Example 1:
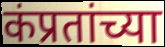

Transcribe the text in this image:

कंप्रतांच्या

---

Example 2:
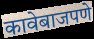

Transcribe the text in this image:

कावेबाजपणे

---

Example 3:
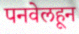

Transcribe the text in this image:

पनवेलहून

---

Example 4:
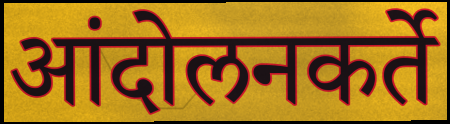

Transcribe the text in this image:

आंदोलनकर्ते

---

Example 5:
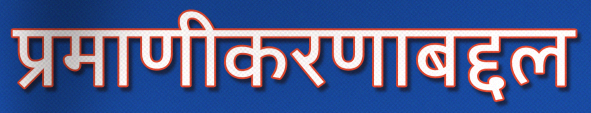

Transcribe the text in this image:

प्रमाणीकरणाबद्दल